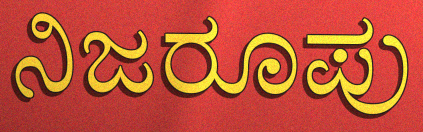
ನಿಜರೂಪು